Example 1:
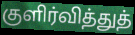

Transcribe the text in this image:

குளிர்வித்துத்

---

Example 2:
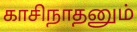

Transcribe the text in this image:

காசிநாதனும்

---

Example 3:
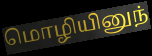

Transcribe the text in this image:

மொழியினுந்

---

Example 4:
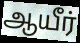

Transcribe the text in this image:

ஆயீர்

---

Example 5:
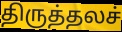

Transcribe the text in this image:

திருத்தலச்